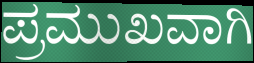
ಪ್ರಮುಖವಾಗಿ